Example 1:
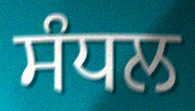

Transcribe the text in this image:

ਸੰਧਲ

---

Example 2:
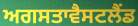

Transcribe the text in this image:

ਅਗਸਤਾਵੈਸਟਲੈਂਡ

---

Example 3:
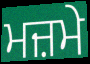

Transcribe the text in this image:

ਮਜ਼ਮੇ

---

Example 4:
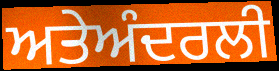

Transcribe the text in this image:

ਅਤੇਅੰਦਰਲੀ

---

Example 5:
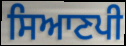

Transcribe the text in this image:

ਸਿਆਣਪੀ